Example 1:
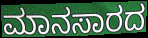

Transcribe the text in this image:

ಮಾನಸಾರದ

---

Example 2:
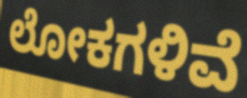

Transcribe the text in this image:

ಲೋಕಗಳಿವೆ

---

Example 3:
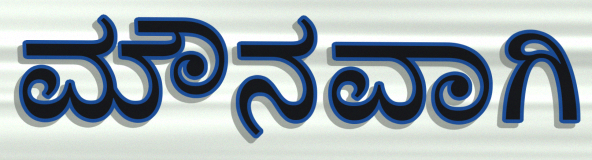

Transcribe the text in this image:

ಮೌನವಾಗಿ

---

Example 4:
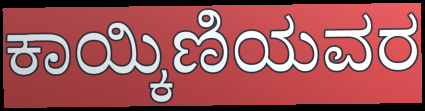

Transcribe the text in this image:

ಕಾಯ್ಕಿಣಿಯವರ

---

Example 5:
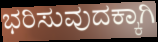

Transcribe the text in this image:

ಭರಿಸುವುದಕ್ಕಾಗಿ